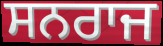
ਸਨਰਾਜ